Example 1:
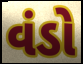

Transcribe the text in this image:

વંડો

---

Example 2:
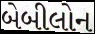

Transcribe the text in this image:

બેબીલોન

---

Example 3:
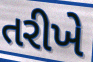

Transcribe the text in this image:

તરીખે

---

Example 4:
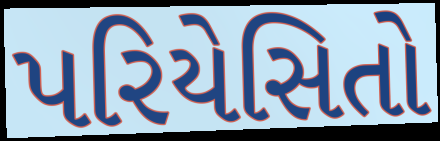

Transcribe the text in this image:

પરિયેસિતો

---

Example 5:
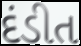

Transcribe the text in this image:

દંડીત